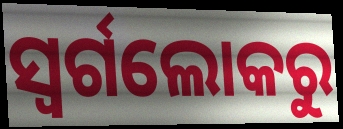
ସ୍ଵର୍ଗଲୋକରୁ